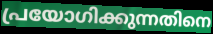
പ്രയോഗിക്കുന്നതിനെ